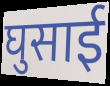
घुसाई